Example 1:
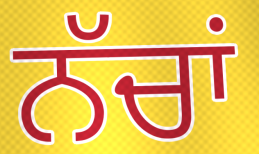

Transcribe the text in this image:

ਨੱਚਾਂ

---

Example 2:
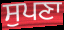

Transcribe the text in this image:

ਸੁਪਣਾ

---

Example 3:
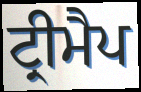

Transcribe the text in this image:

ਟ੍ਰੀਮੈਪ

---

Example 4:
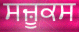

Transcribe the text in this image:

ਸਜ਼ੂਕਸ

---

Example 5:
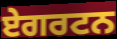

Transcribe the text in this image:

ਏਗਰਟਨ